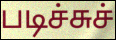
படிச்சுச்